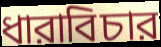
ধারাবিচার